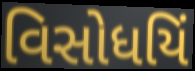
વિસોધયિં